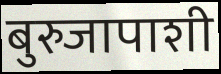
बुरुजापाशी